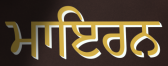
ਮਾਇਰਨ